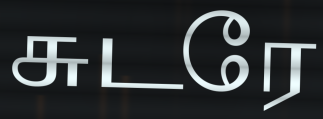
சுடரே